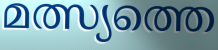
മത്സ്യത്തെ